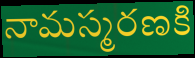
నామస్మరణకి